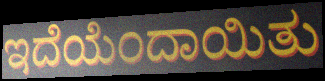
ಇದೆಯೆಂದಾಯಿತು